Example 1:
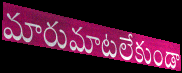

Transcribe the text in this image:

మారుమాటలేకుండా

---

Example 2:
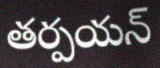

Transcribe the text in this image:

తర్పయన్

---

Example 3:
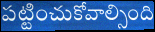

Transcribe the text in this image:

పట్టించుకోవాల్సింది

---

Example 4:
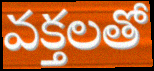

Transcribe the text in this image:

వక్తలతో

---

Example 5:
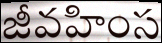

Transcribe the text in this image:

జీవహింస